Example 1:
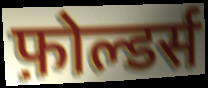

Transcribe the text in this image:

फ़ोल्डर्स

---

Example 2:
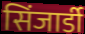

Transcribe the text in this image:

सिंजार्डी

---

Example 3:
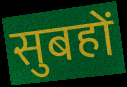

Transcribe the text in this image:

सुबहों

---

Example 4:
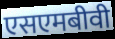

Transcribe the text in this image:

एसएमबीवी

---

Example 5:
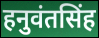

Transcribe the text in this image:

हनुवंतसिंह